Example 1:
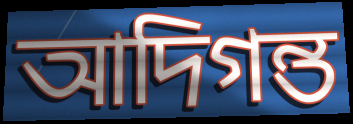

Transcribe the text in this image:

আদিগন্ত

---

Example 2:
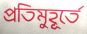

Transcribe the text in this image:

প্রতিমুহূর্তে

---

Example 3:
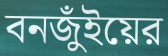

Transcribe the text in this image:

বনজুঁইয়ের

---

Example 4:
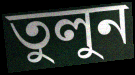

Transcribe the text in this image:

তুলুন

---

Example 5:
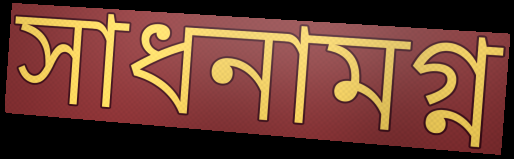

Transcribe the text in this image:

সাধনামগ্ন